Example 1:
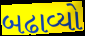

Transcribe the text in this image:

બઢાવ્યો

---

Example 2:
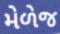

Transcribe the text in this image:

મેળેજ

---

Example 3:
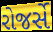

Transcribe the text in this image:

રોજર્સે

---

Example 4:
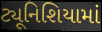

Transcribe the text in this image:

ટ્યૂનિશિયામાં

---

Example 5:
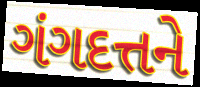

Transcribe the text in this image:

ગંગદત્તને